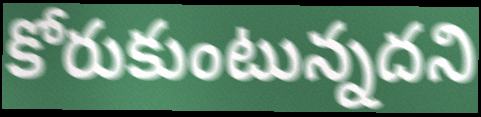
కోరుకుంటున్నదని